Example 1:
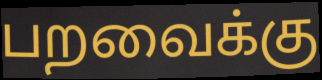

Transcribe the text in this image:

பறவைக்கு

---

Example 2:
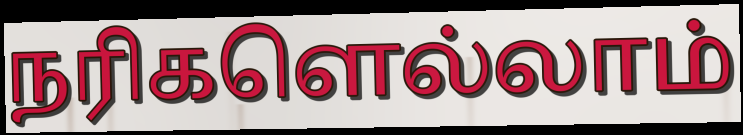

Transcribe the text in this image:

நரிகளெல்லாம்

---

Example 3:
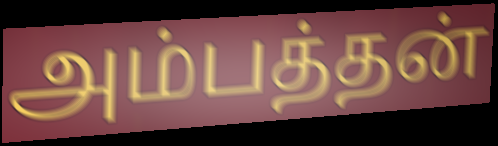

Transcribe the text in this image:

அம்பத்தன்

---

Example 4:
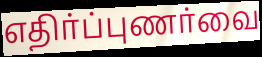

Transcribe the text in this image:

எதிர்ப்புணர்வை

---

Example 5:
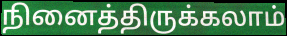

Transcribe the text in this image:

நினைத்திருக்கலாம்